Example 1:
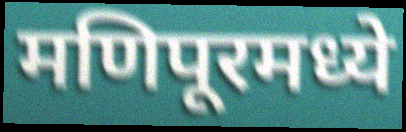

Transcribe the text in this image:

मणिपूरमध्ये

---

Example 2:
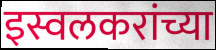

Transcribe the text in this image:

इस्वलकरांच्या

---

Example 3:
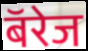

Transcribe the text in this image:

बॅरेज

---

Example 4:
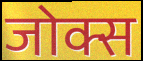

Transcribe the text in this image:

जोक्स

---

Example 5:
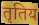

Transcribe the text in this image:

तृतिय